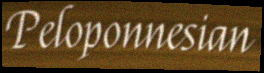
Peloponnesian